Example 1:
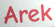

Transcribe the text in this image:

Arek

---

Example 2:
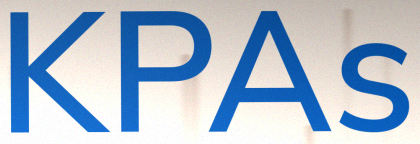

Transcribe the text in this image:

KPAs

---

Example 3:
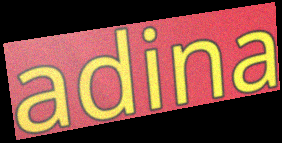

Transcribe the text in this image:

adina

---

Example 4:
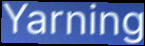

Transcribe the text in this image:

Yarning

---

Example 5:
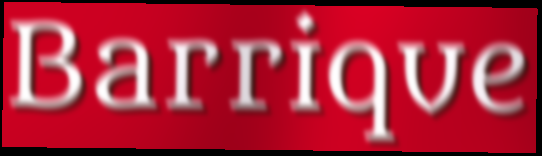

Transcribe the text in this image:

Barrique